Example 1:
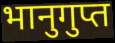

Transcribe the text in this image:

भानुगुप्त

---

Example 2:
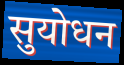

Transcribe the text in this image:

सुयोधन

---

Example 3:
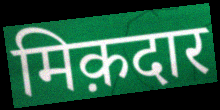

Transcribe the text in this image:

मिक़दार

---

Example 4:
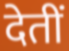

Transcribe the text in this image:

देतीं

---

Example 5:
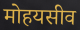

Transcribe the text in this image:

मोहयसीव